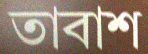
তাবাশ